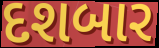
દશબાર